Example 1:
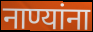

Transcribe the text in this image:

नाण्यांना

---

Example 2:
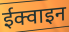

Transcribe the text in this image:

ईक्वाइन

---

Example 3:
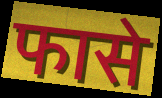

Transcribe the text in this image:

फासे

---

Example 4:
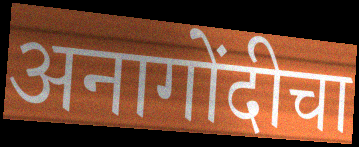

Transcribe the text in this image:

अनागोंदीचा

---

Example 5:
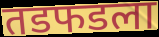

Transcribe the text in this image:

तडफडला